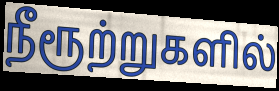
நீரூற்றுகளில்